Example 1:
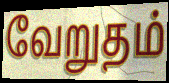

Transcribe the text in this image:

வேறுதம்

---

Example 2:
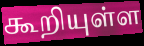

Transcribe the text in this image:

கூறியுள்ள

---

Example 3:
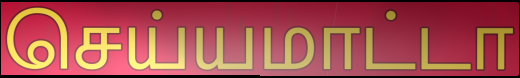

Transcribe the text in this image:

செய்யமாட்டா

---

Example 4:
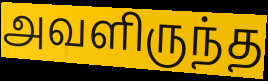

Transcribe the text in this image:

அவளிருந்த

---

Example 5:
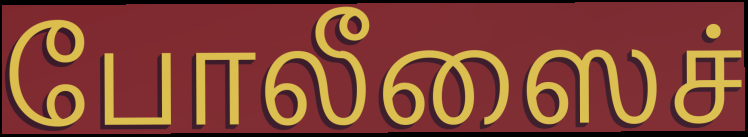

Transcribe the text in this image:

போலீஸைச்